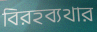
বিরহব্যথার